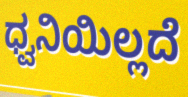
ಧ್ವನಿಯಿಲ್ಲದೆ